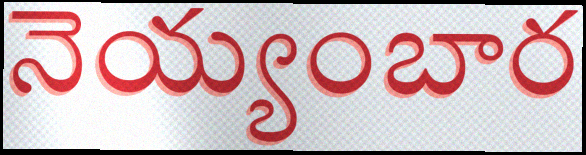
నెయ్యంబార